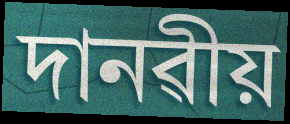
দানৱীয়